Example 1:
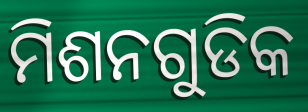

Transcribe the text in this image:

ମିଶନଗୁଡିକ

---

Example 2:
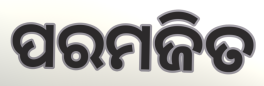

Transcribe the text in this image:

ପରମଜିତ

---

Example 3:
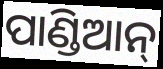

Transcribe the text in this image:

ପାଣ୍ଡିଆନ୍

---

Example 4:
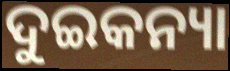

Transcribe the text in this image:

ଦୁଇକନ୍ୟା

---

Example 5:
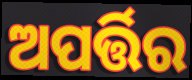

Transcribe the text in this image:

ଅପର୍ତ୍ତିର